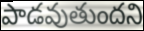
పాడవుతుందని